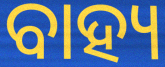
ବାହ୍ୟ